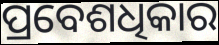
ପ୍ରବେଶଧିକାର